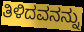
ತಿಳಿದವನನ್ನು